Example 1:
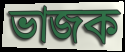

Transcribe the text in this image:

ভাজক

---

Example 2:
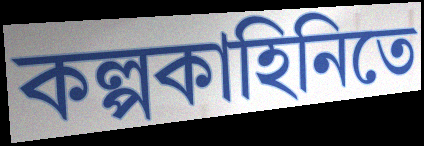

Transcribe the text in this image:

কল্পকাহিনিতে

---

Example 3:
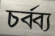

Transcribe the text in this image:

চর্ব্ব্য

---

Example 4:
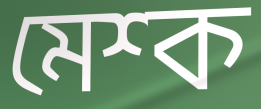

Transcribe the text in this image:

মেশ্ক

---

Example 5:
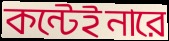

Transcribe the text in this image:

কন্টেইনারে